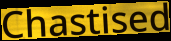
Chastised